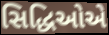
સિદ્ધિઓએ